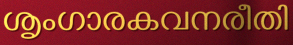
ശൃംഗാരകവനരീതി